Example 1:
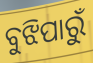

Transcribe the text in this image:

ବୁଝିପାରୁଁ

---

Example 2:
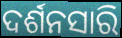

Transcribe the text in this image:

ଦର୍ଶନସାରି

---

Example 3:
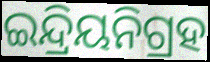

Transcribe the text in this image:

ଇନ୍ଦ୍ରିୟନିଗ୍ରହ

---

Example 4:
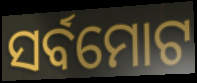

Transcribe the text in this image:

ସର୍ବମୋଟ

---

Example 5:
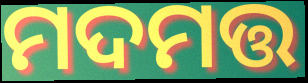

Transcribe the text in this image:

ମଦମତ୍ତ